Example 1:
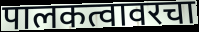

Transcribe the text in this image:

पालकत्वावरचा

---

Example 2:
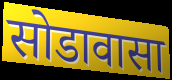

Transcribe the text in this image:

सोडावासा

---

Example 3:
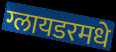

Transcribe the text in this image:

ग्लायडरमधे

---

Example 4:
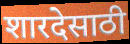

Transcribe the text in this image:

शारदेसाठी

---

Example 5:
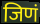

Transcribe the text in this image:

जिणं